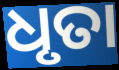
ଧୃତା